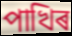
পাখিৰ